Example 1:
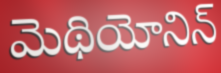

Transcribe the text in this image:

మెథియోనిన్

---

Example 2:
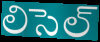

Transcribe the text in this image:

లిసెల్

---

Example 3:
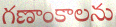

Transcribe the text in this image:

గణాంకాలను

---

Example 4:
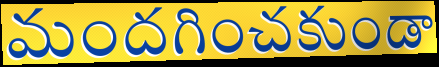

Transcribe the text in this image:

మందగించకుండా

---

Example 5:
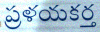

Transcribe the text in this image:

ప్రళయకర్త